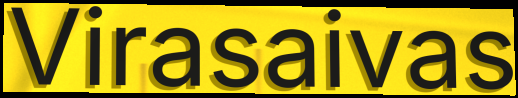
Virasaivas